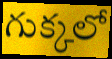
గుక్కలో